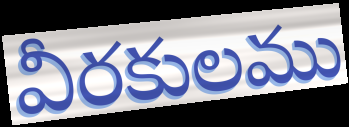
వీరకులము